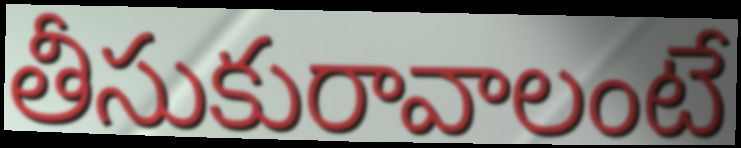
తీసుకురావాలంటే